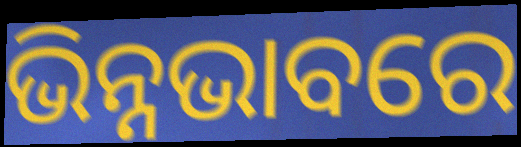
ଭିନ୍ନଭାବରେ